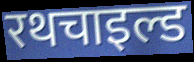
रथचाइल्ड